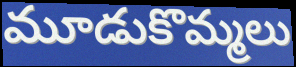
మూడుకొమ్మలు